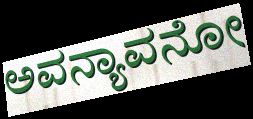
ಅವನ್ಯಾವನೋ